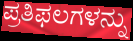
ಪ್ರತಿಫಲಗಳನ್ನು